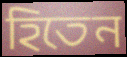
হিতেন